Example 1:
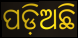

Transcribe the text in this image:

ପଡ଼ିଅଛି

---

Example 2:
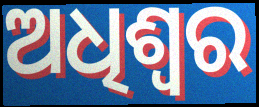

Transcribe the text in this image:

ଅଧିଶ୍ବର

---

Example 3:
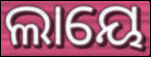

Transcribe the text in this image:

ଲାୟେ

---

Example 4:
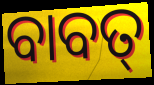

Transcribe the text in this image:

ବାବତ୍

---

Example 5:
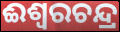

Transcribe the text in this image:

ଈଶ୍ୱରଚନ୍ଦ୍ର